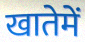
खातेमें